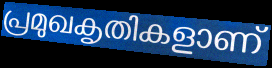
പ്രമുഖകൃതികളാണ്